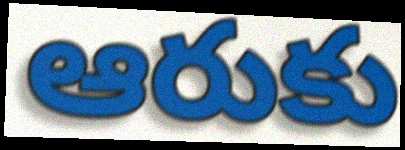
ఆరుకు